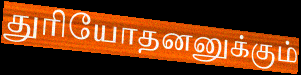
துரியோதனனுக்கும்